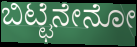
ಬಿಟ್ಟೆನೇನೋ